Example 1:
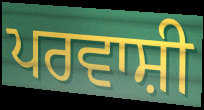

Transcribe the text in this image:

ਪਰਵਾਸ਼ੀ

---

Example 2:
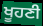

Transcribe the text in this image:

ਖੂਹਣੀ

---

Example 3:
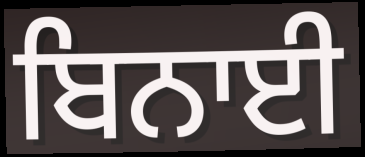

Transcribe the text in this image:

ਬਿਨਾਈ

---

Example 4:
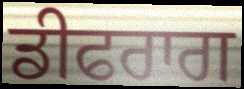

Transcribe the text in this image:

ਡੀਫਰਾਗ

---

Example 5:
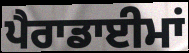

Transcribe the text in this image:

ਪੈਰਾਡਾਈਮਾਂ